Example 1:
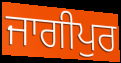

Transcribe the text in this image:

ਜਾਗੀਪੁਰ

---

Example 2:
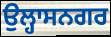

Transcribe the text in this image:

ਉਲ੍ਹਾਸਨਗਰ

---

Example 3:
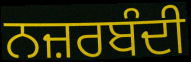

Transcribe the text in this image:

ਨਜ਼ਰਬੰਦੀ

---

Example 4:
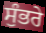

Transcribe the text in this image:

ਸੁੰਭਰੇ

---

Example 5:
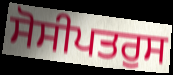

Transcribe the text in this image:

ਸੋਸੀਪਤਰੁਸ